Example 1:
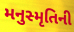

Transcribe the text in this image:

મનુસ્મૃતિની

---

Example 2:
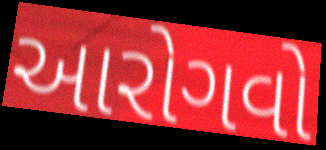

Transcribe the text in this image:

આરોગવો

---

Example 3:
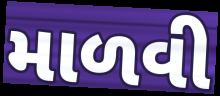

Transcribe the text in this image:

માળવી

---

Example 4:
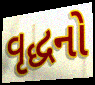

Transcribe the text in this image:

વૃદ્ધનો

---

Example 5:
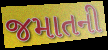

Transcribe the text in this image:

જમાતની